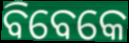
ବିବେକେ